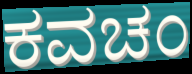
ಕವಚಂ